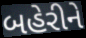
બહેરીને